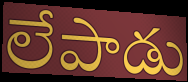
లేపాడు